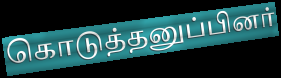
கொடுத்தனுப்பினர்